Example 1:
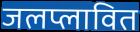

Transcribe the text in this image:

जलप्लावित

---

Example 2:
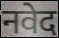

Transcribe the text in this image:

नवेद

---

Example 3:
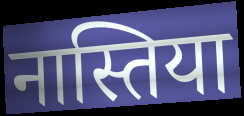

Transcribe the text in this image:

नास्तिया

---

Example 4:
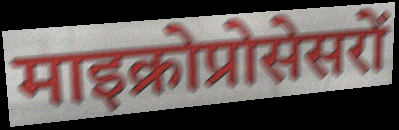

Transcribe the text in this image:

माइक्रोप्रोसेसरों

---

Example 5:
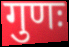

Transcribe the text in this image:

गुणः